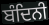
ਬੰਦਿਨੀ